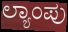
ಲ್ಯಾಂಪು